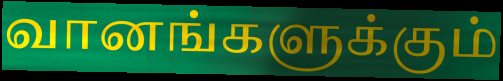
வானங்களுக்கும்